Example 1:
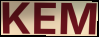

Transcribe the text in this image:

KEM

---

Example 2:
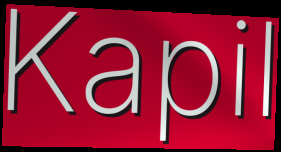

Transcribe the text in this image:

Kapil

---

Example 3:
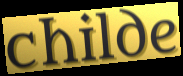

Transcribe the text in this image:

childe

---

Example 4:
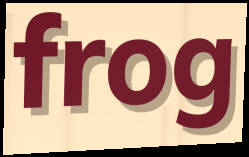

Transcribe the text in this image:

frog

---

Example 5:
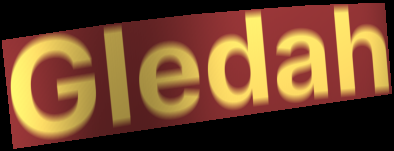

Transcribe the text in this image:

Gledah